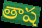
తాష